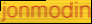
jonmodin